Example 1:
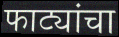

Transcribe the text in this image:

फाट्यांचा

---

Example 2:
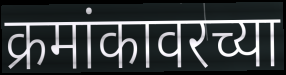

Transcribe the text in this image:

क्रमांकावरच्या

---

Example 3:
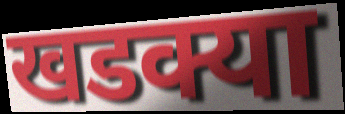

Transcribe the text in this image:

खडक्या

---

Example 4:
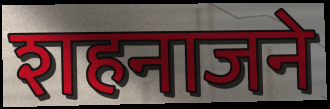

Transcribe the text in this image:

शहनाजने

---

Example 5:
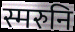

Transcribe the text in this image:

स्मरुनि